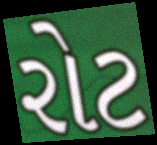
રોટ